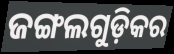
ଜଙ୍ଗଲଗୁଡ଼ିକର